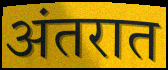
अंतरात